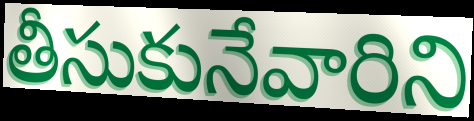
తీసుకునేవారిని